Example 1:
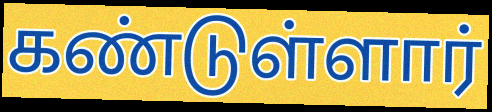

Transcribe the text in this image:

கண்டுள்ளார்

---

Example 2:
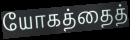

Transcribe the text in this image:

யோகத்தைத்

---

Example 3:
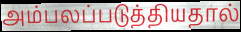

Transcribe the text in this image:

அம்பலப்படுத்தியதால்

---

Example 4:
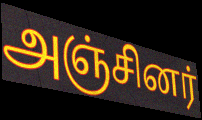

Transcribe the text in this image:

அஞ்சினர்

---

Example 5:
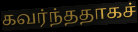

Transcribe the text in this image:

கவர்ந்ததாகச்